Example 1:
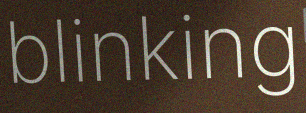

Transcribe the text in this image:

blinking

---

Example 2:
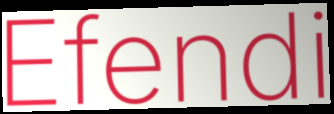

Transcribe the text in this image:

Efendi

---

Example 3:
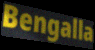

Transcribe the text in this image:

Bengalla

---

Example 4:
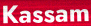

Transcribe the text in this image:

Kassam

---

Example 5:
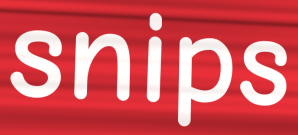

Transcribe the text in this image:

snips